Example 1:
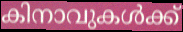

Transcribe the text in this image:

കിനാവുകൾക്ക്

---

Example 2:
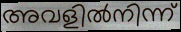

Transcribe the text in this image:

അവളിൽനിന്ന്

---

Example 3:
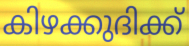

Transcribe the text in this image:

കിഴക്കുദിക്ക്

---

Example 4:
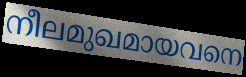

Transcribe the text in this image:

നീലമുഖമായവനെ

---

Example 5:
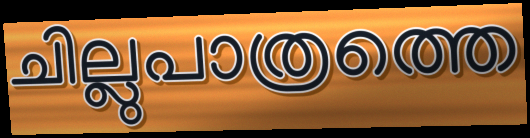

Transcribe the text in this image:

ചില്ലുപാത്രത്തെ